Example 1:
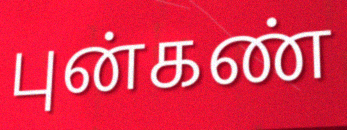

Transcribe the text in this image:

புன்கண்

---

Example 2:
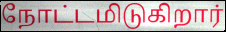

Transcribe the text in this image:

நோட்டமிடுகிறார்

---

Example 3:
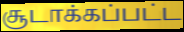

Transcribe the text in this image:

சூடாக்கப்பட்ட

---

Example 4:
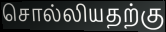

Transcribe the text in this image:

சொல்லியதற்கு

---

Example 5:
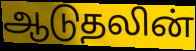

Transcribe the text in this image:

ஆடுதலின்